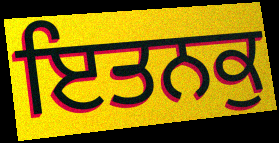
ਇਤਨਕੁ